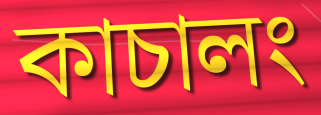
কাচালং